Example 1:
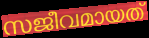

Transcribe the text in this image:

സജീവമായത്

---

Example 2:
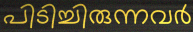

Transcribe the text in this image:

പിടിച്ചിരുന്നവർ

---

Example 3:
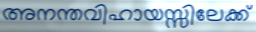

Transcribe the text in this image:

അനന്തവിഹായസ്സിലേക്ക്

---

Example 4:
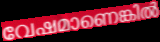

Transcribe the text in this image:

വേഷമാണെങ്കിൽ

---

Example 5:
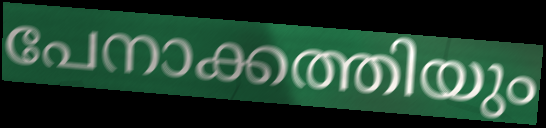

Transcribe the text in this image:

പേനാക്കത്തിയും